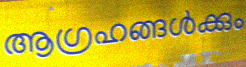
ആഗ്രഹങ്ങൾക്കും